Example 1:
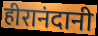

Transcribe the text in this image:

हीरानंदानी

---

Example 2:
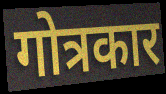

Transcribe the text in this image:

गोत्रकार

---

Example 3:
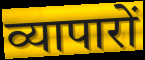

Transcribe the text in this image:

व्यापारों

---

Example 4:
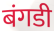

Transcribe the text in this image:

बंगडी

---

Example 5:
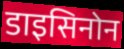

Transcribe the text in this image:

डाइसिनोन